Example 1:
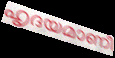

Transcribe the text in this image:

ഹൃദയമാണീ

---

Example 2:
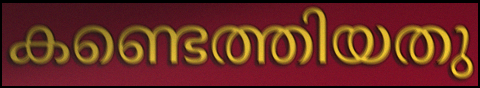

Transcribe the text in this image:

കണ്ടെത്തിയതു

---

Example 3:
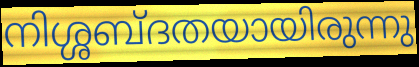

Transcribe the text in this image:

നിശ്ശബ്ദതയായിരുന്നു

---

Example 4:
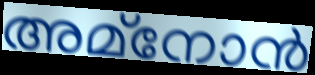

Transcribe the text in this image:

അമ്നോൻ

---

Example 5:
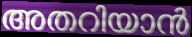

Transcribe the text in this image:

അതറിയാൻ